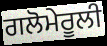
ਗਲੋਮੇਰੂਲੀ